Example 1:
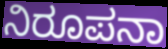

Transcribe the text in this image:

ನಿರೂಪನಾ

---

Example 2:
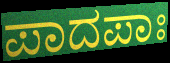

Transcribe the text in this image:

ಪಾದಪಾಃ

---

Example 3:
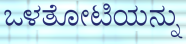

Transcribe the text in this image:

ಒಳತೋಟಿಯನ್ನು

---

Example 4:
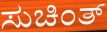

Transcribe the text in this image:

ಸುಚಿಂತ್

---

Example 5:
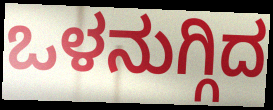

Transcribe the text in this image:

ಒಳನುಗ್ಗಿದ